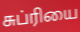
சுப்ரியை